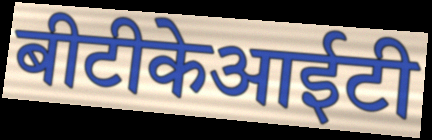
बीटीकेआईटी